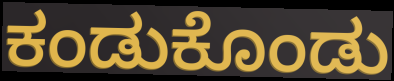
ಕಂಡುಕೊಂಡು